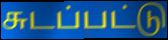
சுடப்பட்டு